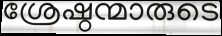
ശ്രേഷ്ഠന്മാരുടെ